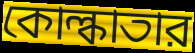
কোল্কাতার